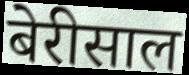
बेरीसाल